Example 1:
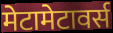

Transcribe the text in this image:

मेटामेटावर्स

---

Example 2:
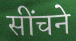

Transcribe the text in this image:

सींचने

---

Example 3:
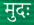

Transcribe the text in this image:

मुदः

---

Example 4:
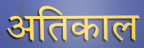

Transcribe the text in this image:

अतिकाल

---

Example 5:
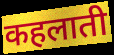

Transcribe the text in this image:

कहलाती